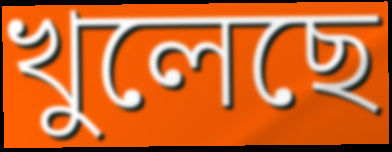
খুলেছে